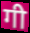
गी